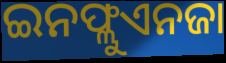
ଇନଫ୍ଲୁଏନଜା